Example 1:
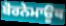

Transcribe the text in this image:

ਬੋਰਨੇਮਾਊਥ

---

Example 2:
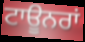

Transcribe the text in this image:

ਟਾਊਨਰਾਂ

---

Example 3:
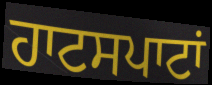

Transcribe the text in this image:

ਹਾਟਸਪਾਟਾਂ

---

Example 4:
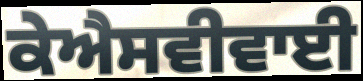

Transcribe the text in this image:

ਕੇਐਸਵੀਵਾਈ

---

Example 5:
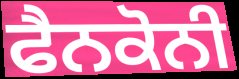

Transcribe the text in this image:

ਫੈਨਕੋਨੀ